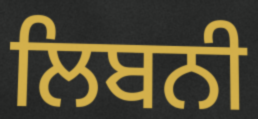
ਲਿਬਨੀ